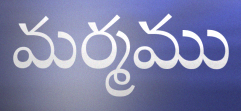
మర్మము